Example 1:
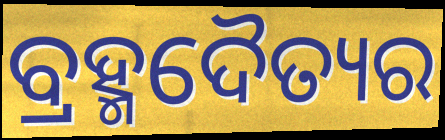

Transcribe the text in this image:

ବ୍ରହ୍ମଦୈତ୍ୟର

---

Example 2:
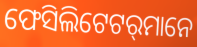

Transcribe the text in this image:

ଫେସିଲିଟେଟର୍‌ମାନେ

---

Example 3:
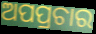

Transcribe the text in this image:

ଅପପ୍ରଚାର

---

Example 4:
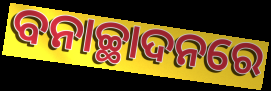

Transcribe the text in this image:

ବନାଚ୍ଛାଦନରେ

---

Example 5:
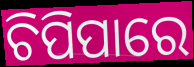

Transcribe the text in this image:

ଚିପିପାରେ